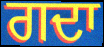
ਗਦਾ